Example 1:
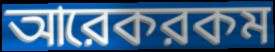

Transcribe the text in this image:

আরেকরকম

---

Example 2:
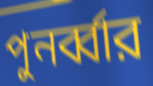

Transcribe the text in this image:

পুনর্ব্বার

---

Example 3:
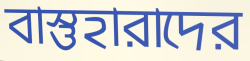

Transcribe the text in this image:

বাস্তুহারাদের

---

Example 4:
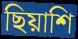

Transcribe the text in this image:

ছিয়াশি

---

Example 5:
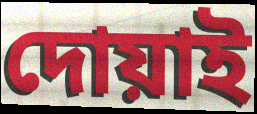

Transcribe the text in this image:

দোয়াই